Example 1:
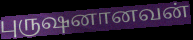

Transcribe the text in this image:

புருஷனானவன்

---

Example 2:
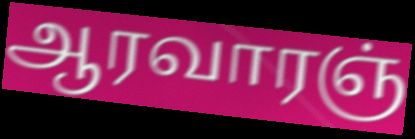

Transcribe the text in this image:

ஆரவாரஞ்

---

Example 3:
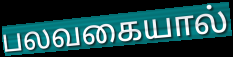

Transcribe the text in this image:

பலவகையால்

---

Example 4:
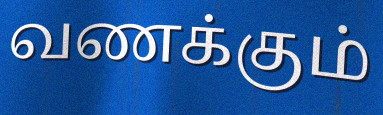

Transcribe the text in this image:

வணக்கும்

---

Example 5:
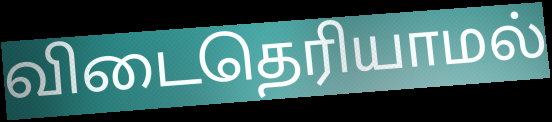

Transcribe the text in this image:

விடைதெரியாமல்